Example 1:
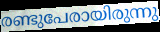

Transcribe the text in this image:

രണ്ടുപേരായിരുന്നു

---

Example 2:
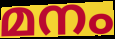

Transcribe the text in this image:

മനം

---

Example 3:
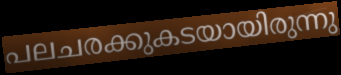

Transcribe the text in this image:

പലചരക്കുകടയായിരുന്നു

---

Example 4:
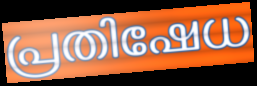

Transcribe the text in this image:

പ്രതിഷേധ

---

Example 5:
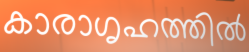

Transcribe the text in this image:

കാരാഗൃഹത്തിൽ